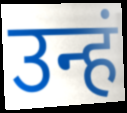
उन्हं